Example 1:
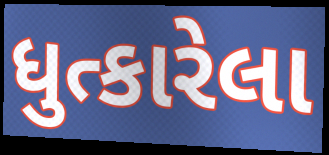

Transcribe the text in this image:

ધુત્કારેલા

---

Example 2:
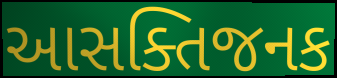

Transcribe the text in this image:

આસક્તિજનક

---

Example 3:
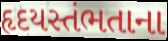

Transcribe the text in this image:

હૃદયસ્તંભતાના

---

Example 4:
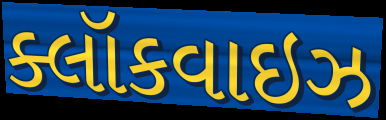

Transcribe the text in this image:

ક્લૉકવાઇઝ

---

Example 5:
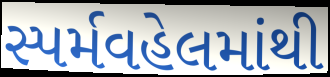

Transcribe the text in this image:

સ્પર્મવહેલમાંથી